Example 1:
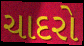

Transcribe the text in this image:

ચાદરો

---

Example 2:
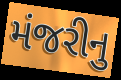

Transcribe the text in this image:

મંજરીનુ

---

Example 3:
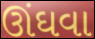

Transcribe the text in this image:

ઊંઘવા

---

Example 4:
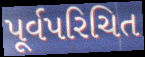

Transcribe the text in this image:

પૂર્વપરિચિત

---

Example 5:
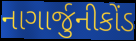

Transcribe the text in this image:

નાગાર્જુનીકોંડ